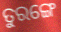
ତୁରଙ୍ଗେ